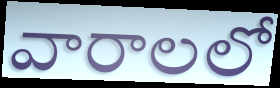
వారాలలో